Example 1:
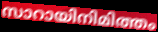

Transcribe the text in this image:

സാറായിനിമിത്തം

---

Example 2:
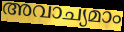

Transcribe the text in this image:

അവാച്യമാം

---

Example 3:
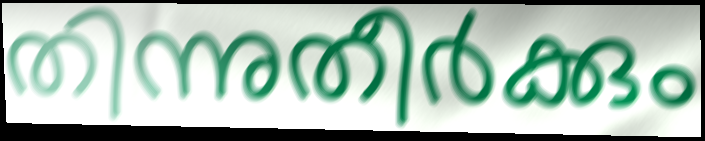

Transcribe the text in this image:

തിന്നുതീർക്കും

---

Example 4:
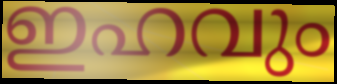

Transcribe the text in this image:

ഇഹവും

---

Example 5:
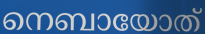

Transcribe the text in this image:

നെബായോത്